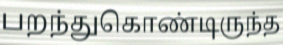
பறந்துகொண்டிருந்த